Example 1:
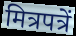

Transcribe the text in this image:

मित्रपत्रें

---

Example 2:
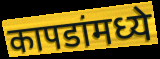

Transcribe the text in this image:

कापडांमध्ये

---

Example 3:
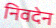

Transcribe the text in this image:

निवदेन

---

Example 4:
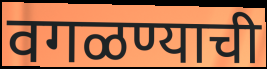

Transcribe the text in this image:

वगळण्याची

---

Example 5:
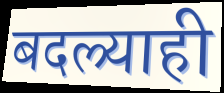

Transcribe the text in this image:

बदल्याही